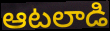
ఆటలాడి